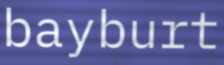
bayburt